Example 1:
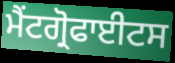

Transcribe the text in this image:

ਮੈਂਟਗ੍ਰੋਫਾਈਟਸ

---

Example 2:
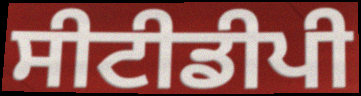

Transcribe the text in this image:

ਸੀਟੀਡੀਪੀ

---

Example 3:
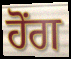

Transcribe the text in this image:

ਹੋੰਗ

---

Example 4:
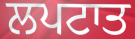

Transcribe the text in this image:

ਲਪਟਾਤ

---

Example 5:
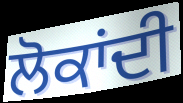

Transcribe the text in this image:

ਲੋਕਾਂਦੀ